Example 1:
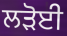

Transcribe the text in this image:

ਲੜੋਈ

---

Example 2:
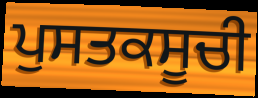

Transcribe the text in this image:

ਪੁਸਤਕਸੂਚੀ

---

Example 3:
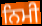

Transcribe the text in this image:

ਨਿਮੀ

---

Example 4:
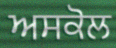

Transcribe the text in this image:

ਅਸਕੋਲ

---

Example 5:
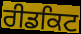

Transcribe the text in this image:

ਰੀਡਕਿਟ